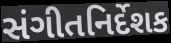
સંગીતનિર્દેશક